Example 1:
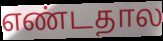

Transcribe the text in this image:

எண்டதால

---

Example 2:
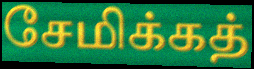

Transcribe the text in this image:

சேமிக்கத்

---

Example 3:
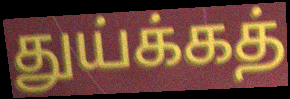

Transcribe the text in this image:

துய்க்கத்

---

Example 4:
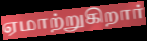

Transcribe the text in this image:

ஏமாற்றுகிறார்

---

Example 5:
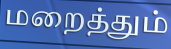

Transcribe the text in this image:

மறைத்தும்